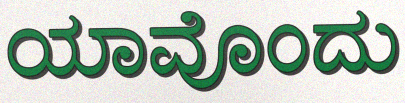
ಯಾವೊಂದು